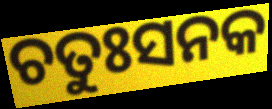
ଚତୁଃସନକ